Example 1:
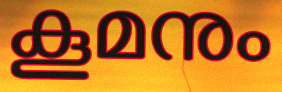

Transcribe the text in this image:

കൂമനും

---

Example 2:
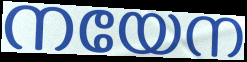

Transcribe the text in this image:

നയേന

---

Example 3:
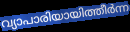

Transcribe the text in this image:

വ്യാപാരിയായിത്തീർന്ന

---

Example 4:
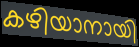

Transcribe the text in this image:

കഴിയാനായി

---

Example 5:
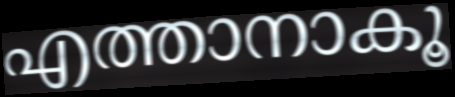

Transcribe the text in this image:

എത്താനാകൂ